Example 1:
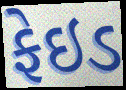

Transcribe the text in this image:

ફેઇડ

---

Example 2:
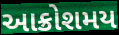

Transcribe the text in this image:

આક્રોશમય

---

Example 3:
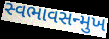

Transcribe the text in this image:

સ્વભાવસન્મુખ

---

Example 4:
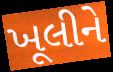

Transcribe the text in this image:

ખૂલીને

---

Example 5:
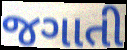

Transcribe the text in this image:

જગાતી